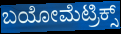
ಬಯೋಮೆಟ್ರಿಕ್ಸ್